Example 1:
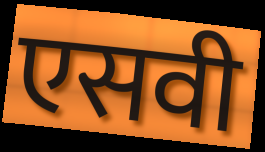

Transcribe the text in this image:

एसवी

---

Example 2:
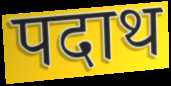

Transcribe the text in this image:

पदाथ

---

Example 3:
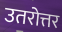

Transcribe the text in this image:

उतरोत्तर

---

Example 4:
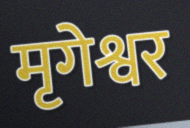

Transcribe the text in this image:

मृगेश्वर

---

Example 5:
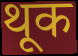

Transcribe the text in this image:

थूक